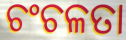
ଚଂଚଳତା